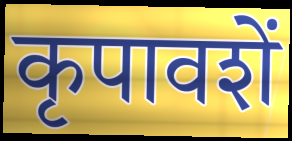
कृपावशें